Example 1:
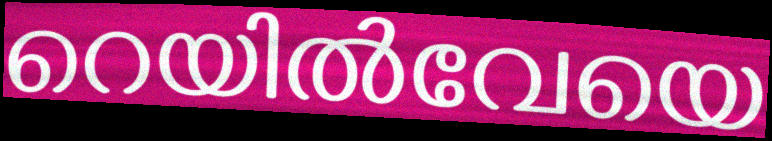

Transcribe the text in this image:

റെയിൽവേയെ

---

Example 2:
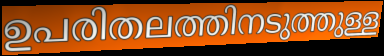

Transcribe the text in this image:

ഉപരിതലത്തിനടുത്തുള്ള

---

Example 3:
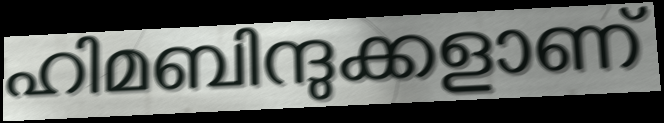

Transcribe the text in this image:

ഹിമബിന്ദുക്കളാണ്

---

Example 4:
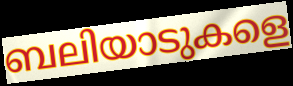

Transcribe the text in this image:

ബലിയാടുകളെ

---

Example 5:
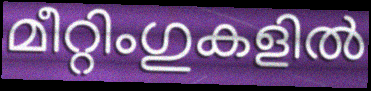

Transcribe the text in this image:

മീറ്റിംഗുകളിൽ